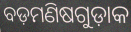
ବଡ଼ମଣିଷଗୁଡ଼ାକ